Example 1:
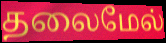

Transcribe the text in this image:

தலைமேல்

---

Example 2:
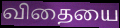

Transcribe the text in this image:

விதையை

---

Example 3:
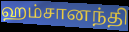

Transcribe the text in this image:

ஹம்சானந்தி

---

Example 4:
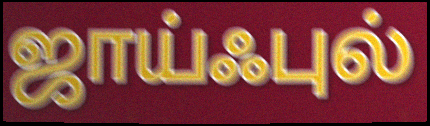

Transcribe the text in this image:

ஜாய்ஃபுல்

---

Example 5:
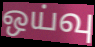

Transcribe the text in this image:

ஒய்வு